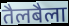
तैलबैला